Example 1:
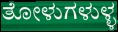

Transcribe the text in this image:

ತೋಳುಗಳುಳ್ಳ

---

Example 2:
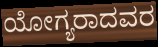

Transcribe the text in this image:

ಯೋಗ್ಯರಾದವರ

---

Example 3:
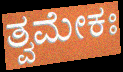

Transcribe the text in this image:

ತ್ವಮೇಕಃ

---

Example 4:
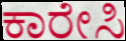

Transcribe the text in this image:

ಕಾರೇಸಿ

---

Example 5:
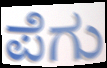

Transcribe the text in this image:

ಪೆಗು